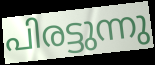
പിരട്ടുന്നു